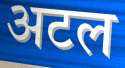
अटल